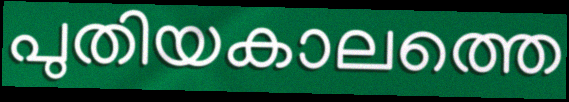
പുതിയകാലത്തെ